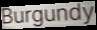
Burgundy